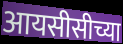
आयसीसीच्या